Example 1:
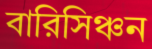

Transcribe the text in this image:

বারিসিঞ্চন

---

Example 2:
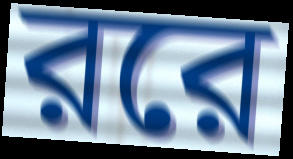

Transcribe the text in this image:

ররে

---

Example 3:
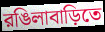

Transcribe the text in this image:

রঙিলাবাড়িতে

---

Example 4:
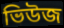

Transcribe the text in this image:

ভিউজ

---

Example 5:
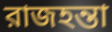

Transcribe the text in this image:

রাজহন্তা